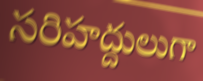
సరిహద్దులుగా